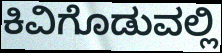
ಕಿವಿಗೊಡುವಲ್ಲಿ